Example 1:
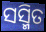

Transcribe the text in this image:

ସସ୍ମିତ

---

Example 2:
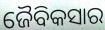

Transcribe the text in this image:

ଜୈବିକସାର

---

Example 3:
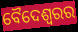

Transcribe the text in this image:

ବୈଦେଶ୍ୱରର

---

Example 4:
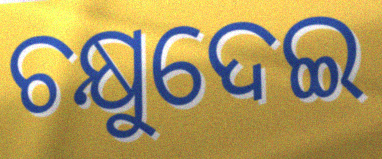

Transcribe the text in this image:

ଚକ୍ଷୁଦେଇ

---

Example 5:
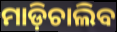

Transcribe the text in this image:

ମାଡ଼ିଚାଲିବ